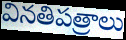
వినతిపత్రాలు